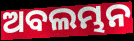
ଅବଲମ୍ଭନ